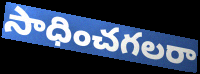
సాధించగలరా